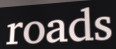
roads